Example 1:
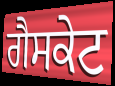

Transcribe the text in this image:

ਗੈਸਕੇਟ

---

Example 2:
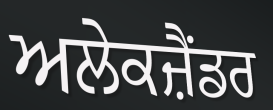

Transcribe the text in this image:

ਅਲੇਕਜ਼ੈਂਡਰ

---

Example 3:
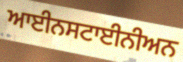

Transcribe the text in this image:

ਆਈਨਸਟਾਈਨੀਅਨ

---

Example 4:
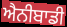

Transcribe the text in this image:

ਐਨੀਬਾਡੀ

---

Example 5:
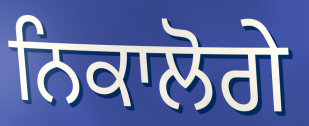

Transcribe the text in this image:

ਨਿਕਾਲੋਗੇ